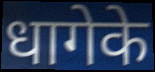
धागेके